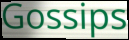
Gossips